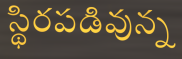
స్థిరపడివున్న